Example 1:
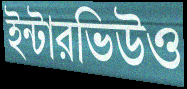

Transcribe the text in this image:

ইন্টারভিউও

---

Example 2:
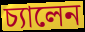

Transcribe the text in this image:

চ্যালেন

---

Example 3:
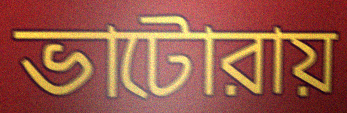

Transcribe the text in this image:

ভাটোরায়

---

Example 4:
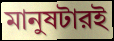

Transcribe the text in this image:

মানুষটারই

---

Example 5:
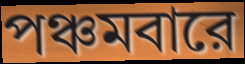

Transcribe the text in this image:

পঞ্চমবারে